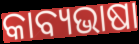
କାବ୍ୟଭାଷା